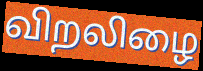
விறலிழை